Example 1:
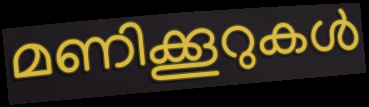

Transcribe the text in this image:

മണിക്കൂറുകൾ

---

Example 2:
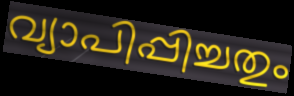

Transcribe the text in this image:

വ്യാപിപ്പിച്ചതും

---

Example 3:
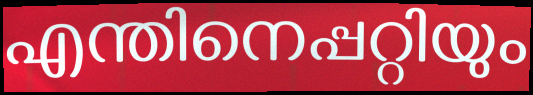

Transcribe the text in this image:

എന്തിനെപ്പറ്റിയും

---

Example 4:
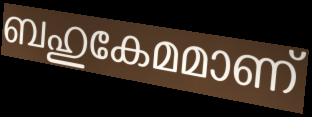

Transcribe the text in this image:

ബഹുകേമമാണ്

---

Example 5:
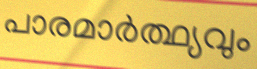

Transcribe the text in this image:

പാരമാർത്ഥ്യവും